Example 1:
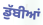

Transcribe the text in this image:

ਡੁੱਬੀਆਂ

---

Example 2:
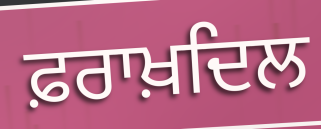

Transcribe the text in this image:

ਫ਼ਰਾਖ਼ਦਿਲ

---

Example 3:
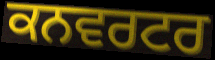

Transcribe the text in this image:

ਕਨਵਰਟਰ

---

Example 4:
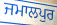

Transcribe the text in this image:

ਜਮਾਲਪੁਰ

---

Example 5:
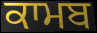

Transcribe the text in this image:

ਕਾਮਬ